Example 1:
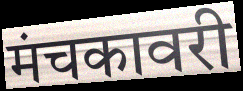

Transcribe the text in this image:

मंचकावरी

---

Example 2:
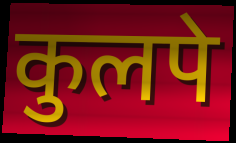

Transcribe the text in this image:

कुलपे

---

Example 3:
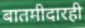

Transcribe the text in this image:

बातमीदारही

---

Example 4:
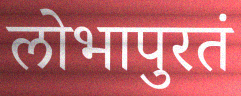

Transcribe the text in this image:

लोभापुरतं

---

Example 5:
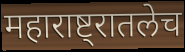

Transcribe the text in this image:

महाराष्ट्रातलेच